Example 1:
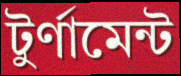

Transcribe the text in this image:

টুর্ণামেন্ট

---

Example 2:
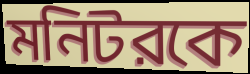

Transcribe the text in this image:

মনিটরকে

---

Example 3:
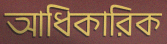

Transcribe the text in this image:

আধিকারিক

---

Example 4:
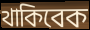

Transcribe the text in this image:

থাকিবেক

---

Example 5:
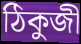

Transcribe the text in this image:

ঠিকুজী